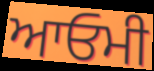
ਆਓਮੀ